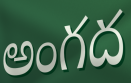
అంగద